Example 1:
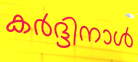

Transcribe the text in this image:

കർദ്ദിനാൾ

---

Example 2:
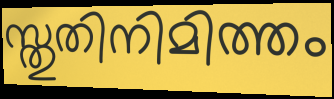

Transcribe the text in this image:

സ്തുതിനിമിത്തം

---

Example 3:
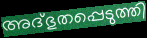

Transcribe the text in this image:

അദ്ഭുതപ്പെടുത്തി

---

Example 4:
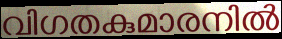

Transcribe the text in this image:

വിഗതകുമാരനിൽ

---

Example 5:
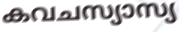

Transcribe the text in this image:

കവചസ്യാസ്യ